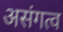
असंगत्व